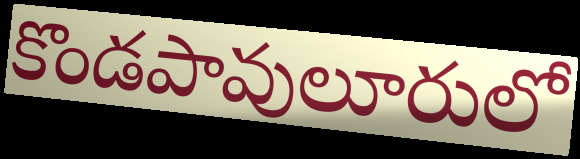
కొండపావులూరులో